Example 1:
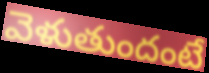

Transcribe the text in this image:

వెళుతుందంటే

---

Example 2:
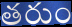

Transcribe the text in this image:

తరుం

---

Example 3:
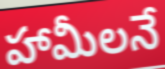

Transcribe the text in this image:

హామీలనే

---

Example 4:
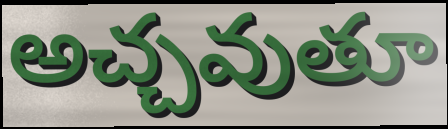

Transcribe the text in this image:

అచ్చవుతూ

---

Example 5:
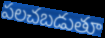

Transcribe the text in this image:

పలచబడుతూ